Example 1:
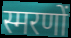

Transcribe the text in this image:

स्मरणों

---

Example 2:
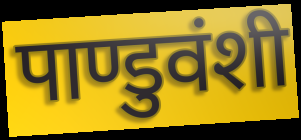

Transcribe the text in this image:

पाण्डुवंशी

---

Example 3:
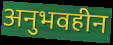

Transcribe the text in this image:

अनुभवहीन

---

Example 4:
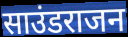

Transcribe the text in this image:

साउंडराजन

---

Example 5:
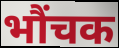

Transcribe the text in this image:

भौंचक